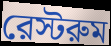
রেস্টরুম